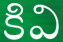
కివి